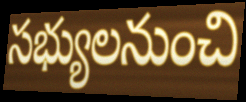
సభ్యులనుంచి